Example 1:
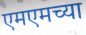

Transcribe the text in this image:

एमएमच्या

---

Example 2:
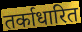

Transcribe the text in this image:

तर्काधारित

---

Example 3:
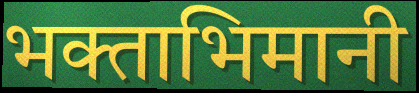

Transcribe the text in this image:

भक्ताभिमानी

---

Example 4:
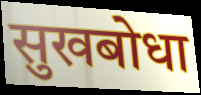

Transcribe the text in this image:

सुखबोधा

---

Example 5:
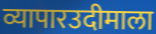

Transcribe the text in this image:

व्यापारउदीमाला